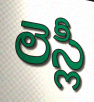
లెస్లీ